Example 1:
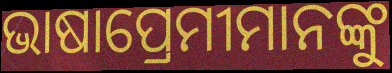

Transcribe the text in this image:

ଭାଷାପ୍ରେମୀମାନଙ୍କୁ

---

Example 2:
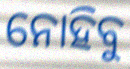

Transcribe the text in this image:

ନୋହିବୁ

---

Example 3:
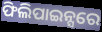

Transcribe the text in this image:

ଫିଲିପାଇନ୍ସରେ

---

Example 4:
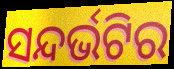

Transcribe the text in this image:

ସନ୍ଦର୍ଭଟିର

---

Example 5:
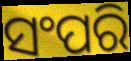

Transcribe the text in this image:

ସଂପରି